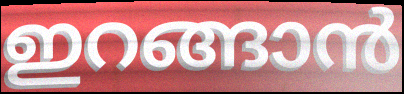
ഇറങ്ങാൻ